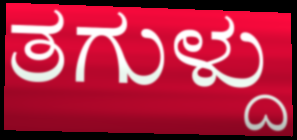
ತಗುಳ್ದು